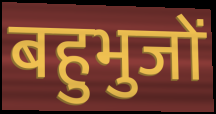
बहुभुजों